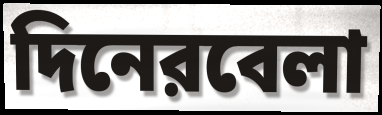
দিনেরবেলা